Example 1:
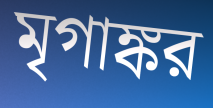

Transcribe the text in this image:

মৃগাঙ্কর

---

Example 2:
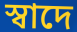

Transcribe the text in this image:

স্বাদে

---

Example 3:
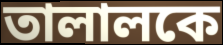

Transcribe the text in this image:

তালালকে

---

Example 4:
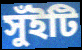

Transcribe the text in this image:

সুঁইটি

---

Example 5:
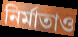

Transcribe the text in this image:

নির্মাতাও